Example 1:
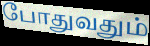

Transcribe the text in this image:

போதுவதும்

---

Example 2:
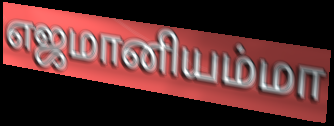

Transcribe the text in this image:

எஜமானியம்மா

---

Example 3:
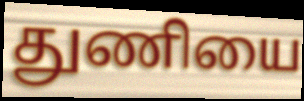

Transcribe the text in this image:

துணியை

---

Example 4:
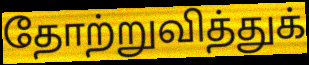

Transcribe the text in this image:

தோற்றுவித்துக்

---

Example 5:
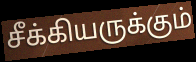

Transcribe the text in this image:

சீக்கியருக்கும்